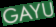
GAYU